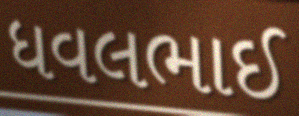
ધવલભાઈ